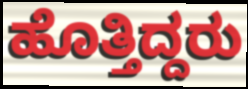
ಹೊತ್ತಿದ್ದರು